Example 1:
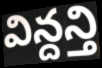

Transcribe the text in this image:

విన్దన్తి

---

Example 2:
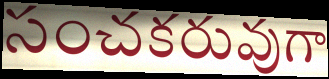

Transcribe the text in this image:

సంచకరువుగా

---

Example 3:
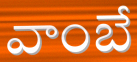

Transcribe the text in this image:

వాంబే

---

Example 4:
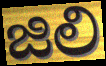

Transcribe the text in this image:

జిలి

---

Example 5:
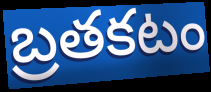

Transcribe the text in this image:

బ్రతకటం